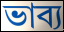
ভাব্য